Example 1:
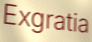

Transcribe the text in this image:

Exgratia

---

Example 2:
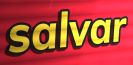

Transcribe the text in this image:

salvar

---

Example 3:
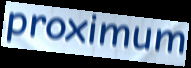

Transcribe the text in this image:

proximum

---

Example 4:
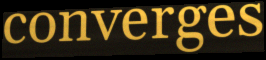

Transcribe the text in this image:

converges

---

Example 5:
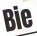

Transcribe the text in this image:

Bie